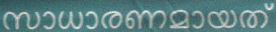
സാധാരണമായത്